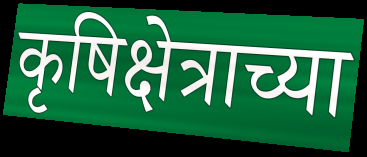
कृषिक्षेत्राच्या